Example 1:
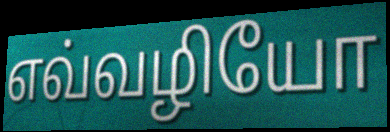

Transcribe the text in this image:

எவ்வழியோ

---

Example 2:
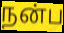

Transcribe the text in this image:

நன்ப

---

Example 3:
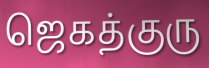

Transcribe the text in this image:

ஜெகத்குரு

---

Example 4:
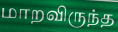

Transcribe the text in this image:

மாறவிருந்த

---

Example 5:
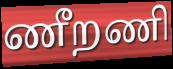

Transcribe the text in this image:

ணீறணி